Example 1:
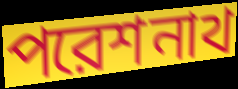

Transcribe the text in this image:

পরেশনাথ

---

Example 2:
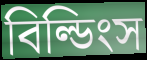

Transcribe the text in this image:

বিল্ডিংস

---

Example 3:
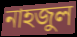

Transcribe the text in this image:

নাহজুল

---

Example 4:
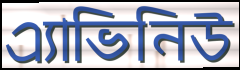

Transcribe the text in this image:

এ্যাভিনিউ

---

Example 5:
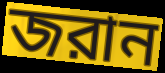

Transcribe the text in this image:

জরান